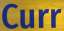
Curr